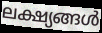
ലക്ഷ്യങ്ങൾ